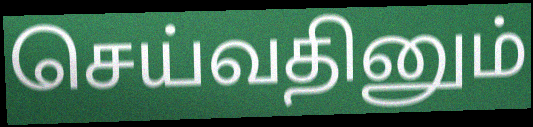
செய்வதினும்